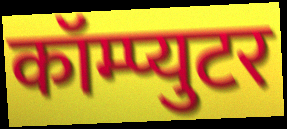
कॉम्प्युटर